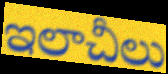
ఇలాచీలు